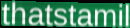
thatstamil